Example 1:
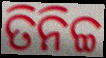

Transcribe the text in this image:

ତିନିଚ୍ଚ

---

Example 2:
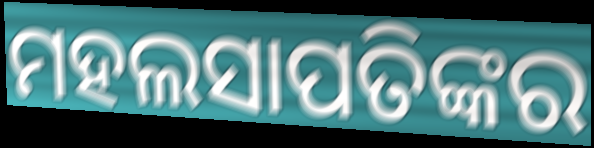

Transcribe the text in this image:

ମହଲସାପତିଙ୍କର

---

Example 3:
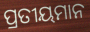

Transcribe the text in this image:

ପ୍ରତୀୟମାନ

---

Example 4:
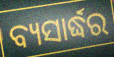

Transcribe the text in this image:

ବ୍ୟସାର୍ଦ୍ଧର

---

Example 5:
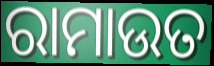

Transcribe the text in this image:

ରାମାଉତ